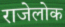
राजेलोक